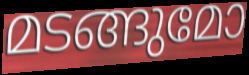
മടങ്ങുമോ